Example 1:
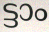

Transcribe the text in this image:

ട്ടാം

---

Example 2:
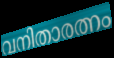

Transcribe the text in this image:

വനിതാരത്നം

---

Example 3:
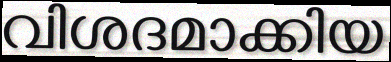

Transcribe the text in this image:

വിശദമാക്കിയ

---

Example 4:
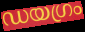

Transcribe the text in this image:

ഡയഗ്രം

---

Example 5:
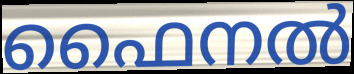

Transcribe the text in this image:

ഫൈനൽ